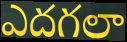
ఎదగలా